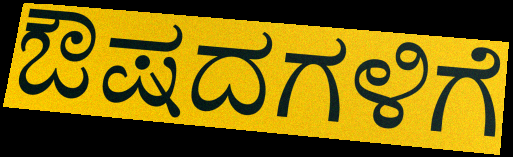
ಔಷದಗಳಿಗೆ